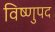
विष्णुपद